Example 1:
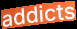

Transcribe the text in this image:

addicts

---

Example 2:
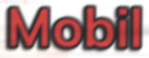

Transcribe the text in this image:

Mobil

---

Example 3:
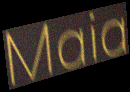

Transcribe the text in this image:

Maia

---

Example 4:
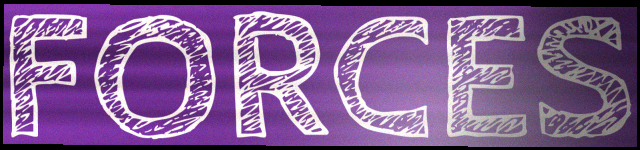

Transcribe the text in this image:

FORCES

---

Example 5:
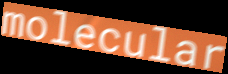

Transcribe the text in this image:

molecular